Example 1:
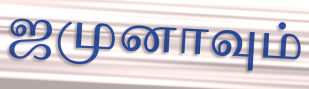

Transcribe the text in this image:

ஜமுனாவும்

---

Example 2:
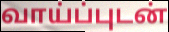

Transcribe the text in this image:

வாய்ப்புடன்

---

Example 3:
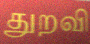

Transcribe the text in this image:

துறவி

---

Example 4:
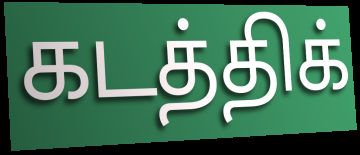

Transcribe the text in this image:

கடத்திக்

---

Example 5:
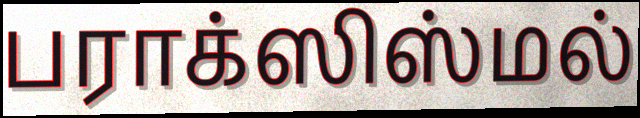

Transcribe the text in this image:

பராக்ஸிஸ்மல்